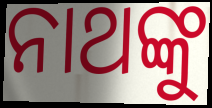
ନାଥଙ୍କୁ